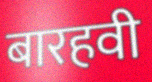
बारहवी